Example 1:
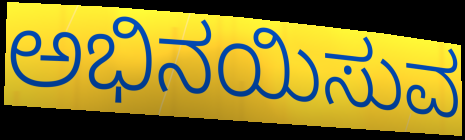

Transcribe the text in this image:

ಅಭಿನಯಿಸುವ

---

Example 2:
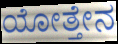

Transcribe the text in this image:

ಯೋತ್ತೇನ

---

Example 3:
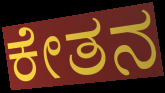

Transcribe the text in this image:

ಕೇತನ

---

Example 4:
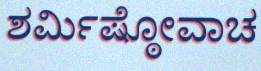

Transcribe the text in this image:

ಶರ್ಮಿಷ್ಠೋವಾಚ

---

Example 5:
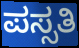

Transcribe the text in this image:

ಪಸ್ಸತಿ